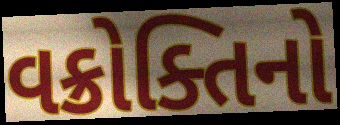
વક્રોક્તિનો